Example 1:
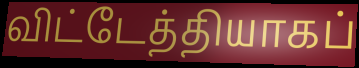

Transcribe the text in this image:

விட்டேத்தியாகப்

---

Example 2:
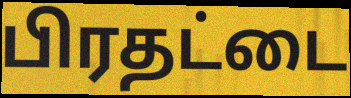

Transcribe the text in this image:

பிரதட்டை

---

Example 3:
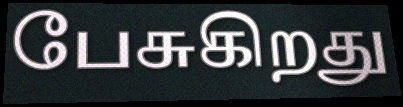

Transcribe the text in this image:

பேசுகிறது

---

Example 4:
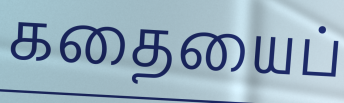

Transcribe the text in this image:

கதையைப்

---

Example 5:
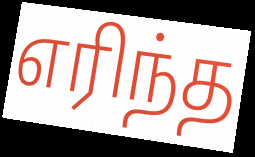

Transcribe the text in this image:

எரிந்த